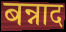
बन्नाद